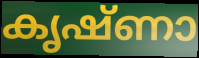
കൃഷ്ണാ